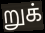
றுக்